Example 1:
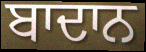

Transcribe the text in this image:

ਬਾਦਾਨ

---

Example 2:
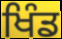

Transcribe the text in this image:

ਖਿੰਡ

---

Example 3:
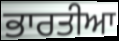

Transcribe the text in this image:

ਭਾਰਤੀਆ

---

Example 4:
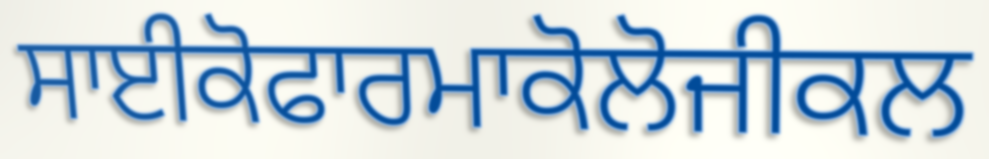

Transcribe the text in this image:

ਸਾਈਕੋਫਾਰਮਾਕੋਲੋਜੀਕਲ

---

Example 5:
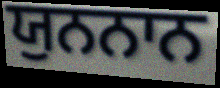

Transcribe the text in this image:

ਯੁਨਨਾਨ